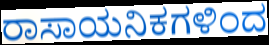
ರಾಸಾಯನಿಕಗಳಿಂದ